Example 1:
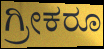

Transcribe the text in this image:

ಗ್ರೀಕರೂ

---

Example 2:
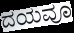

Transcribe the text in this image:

ದಯವೂ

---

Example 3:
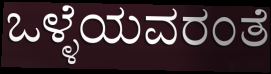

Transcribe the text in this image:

ಒಳ್ಳೆಯವರಂತೆ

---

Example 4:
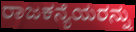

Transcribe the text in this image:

ರಾಜಕನ್ಯೆಯರನ್ನು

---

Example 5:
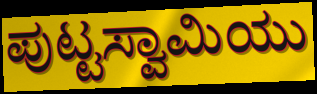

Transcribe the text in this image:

ಪುಟ್ಟಸ್ವಾಮಿಯು